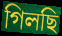
গিলছি